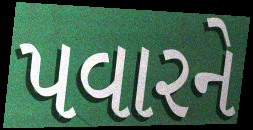
પવારને